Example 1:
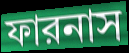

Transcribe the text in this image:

ফারনাস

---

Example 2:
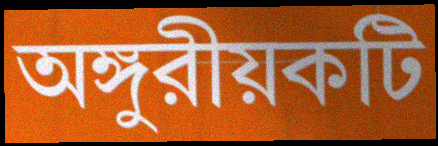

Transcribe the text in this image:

অঙ্গুরীয়কটি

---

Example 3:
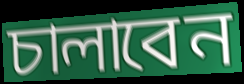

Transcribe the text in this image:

চালাবেন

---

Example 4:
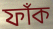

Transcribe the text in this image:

ফাঁক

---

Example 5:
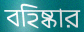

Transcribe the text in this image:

বহিষ্কার